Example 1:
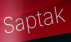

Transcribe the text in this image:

Saptak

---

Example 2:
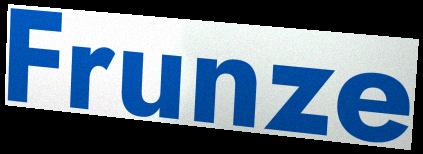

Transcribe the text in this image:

Frunze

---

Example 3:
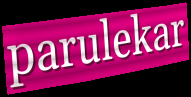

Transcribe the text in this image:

parulekar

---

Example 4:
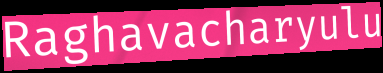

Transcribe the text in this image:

Raghavacharyulu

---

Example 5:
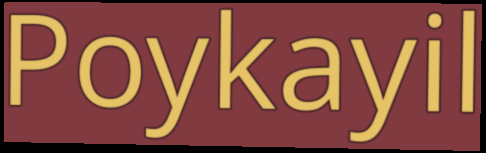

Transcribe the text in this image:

Poykayil